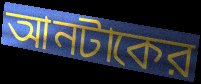
আনটাকের